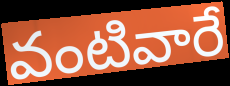
వంటివారే